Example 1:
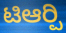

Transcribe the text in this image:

ಟಿಆರ್‍ಪಿ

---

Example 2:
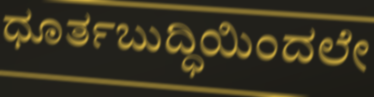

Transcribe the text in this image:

ಧೂರ್ತಬುದ್ಧಿಯಿಂದಲೇ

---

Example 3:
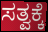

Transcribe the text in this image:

ಸತ್ವಕ್ಕೆ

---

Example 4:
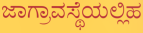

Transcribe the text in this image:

ಜಾಗ್ರಾವಸ್ಥೆಯಲ್ಲಿಹ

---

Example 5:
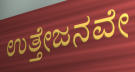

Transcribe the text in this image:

ಉತ್ತೇಜನವೇ